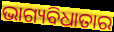
ଭାଗ୍ୟବିଧାତାର